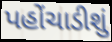
પહોંચાડીશું